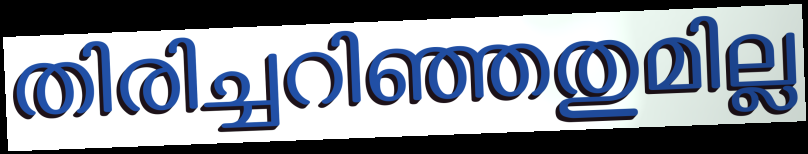
തിരിച്ചറിഞ്ഞതുമില്ല